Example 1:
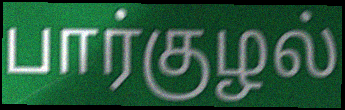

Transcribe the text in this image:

பார்குழல்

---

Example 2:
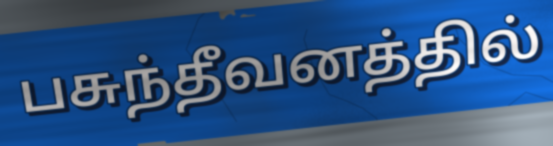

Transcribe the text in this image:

பசுந்தீவனத்தில்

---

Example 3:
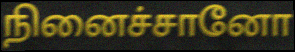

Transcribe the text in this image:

நினைச்சானோ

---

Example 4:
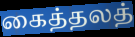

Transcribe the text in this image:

கைத்தலத்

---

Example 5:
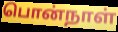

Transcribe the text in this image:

பொன்நாள்